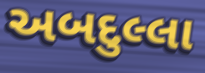
અબદુલ્લા